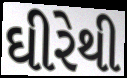
ઘીરેથી